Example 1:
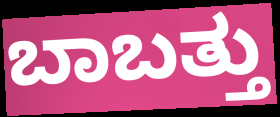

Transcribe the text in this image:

ಬಾಬತ್ತು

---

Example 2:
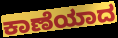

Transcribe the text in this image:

ಕಾಣೆಯಾದ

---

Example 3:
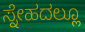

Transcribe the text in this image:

ಸ್ನೇಹದಲ್ಲೂ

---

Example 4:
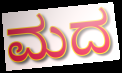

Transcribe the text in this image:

ಮದ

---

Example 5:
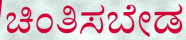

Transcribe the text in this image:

ಚಿಂತಿಸಬೇಡ